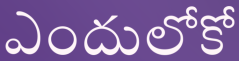
ఎందులోకో